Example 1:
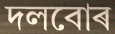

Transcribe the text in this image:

দলবোৰ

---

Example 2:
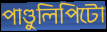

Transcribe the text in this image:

পাণ্ডুলিপিটো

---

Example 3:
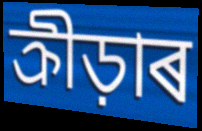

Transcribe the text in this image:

ক্ৰীড়াৰ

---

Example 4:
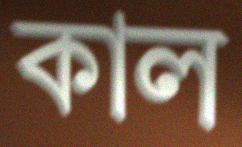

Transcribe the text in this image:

কাল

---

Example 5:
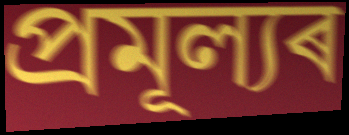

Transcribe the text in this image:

প্ৰমূল্যৰ